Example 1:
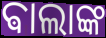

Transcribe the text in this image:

ଵାଲାଙ୍କ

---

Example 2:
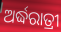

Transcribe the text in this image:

ଅର୍ଦ୍ଧରାତ୍ରୀ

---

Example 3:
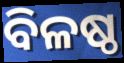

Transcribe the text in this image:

ବିଳଷ୍ଠ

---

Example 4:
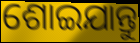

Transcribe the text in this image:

ଶୋଇଯାନ୍ତୁ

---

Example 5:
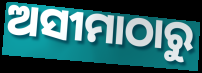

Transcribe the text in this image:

ଅସୀମାଠାରୁ